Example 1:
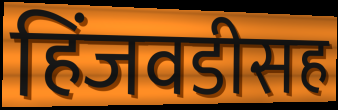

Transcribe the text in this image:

हिंजवडीसह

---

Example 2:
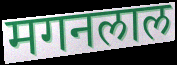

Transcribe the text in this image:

मगनलाल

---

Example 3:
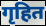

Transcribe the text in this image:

गृहित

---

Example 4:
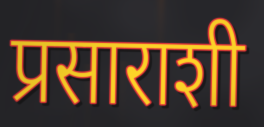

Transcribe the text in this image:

प्रसाराशी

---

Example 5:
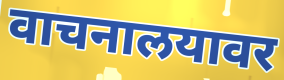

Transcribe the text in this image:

वाचनालयावर